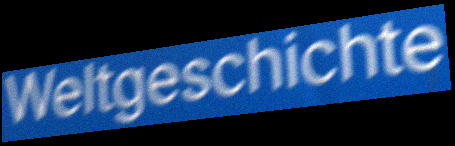
Weltgeschichte